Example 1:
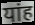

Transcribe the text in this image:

यांह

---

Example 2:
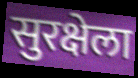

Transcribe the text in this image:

सुरक्षेला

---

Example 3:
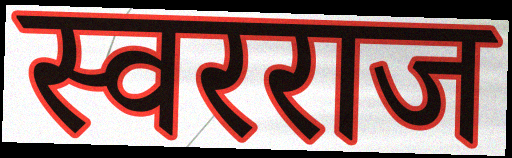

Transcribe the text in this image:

स्वरराज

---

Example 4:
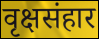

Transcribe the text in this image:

वृक्षसंहार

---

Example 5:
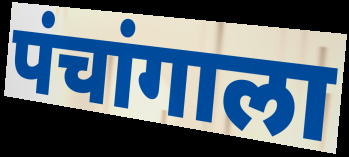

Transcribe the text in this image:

पंचांगाला